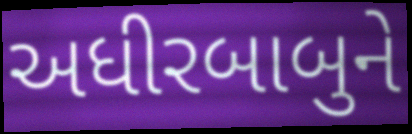
અધીરબાબુને